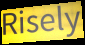
Risely